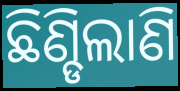
ଛିଣ୍ଡିଲାଣି